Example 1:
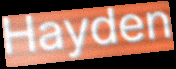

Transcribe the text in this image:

Hayden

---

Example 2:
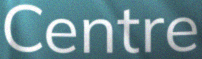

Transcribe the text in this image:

Centre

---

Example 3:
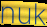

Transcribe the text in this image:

nuk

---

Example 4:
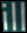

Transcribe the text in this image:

ill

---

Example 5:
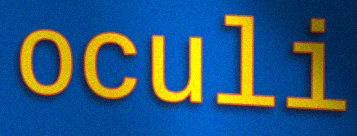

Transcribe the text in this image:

oculi